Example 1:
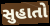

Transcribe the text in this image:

સુહાતો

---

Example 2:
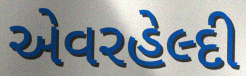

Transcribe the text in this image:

એવરહેલ્દી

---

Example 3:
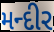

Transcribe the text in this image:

મન્દીર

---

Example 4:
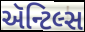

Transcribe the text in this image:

ઍન્ટિલ્સ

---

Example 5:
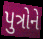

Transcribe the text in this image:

પુત્રોને